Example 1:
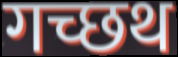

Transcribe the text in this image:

गच्छथ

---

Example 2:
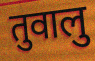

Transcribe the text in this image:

तुवालु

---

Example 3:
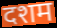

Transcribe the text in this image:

दशम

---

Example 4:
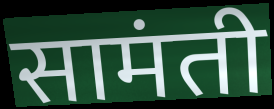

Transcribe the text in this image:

सामंती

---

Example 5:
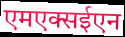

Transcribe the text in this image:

एमएक्सईएन